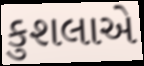
કુશલાએ